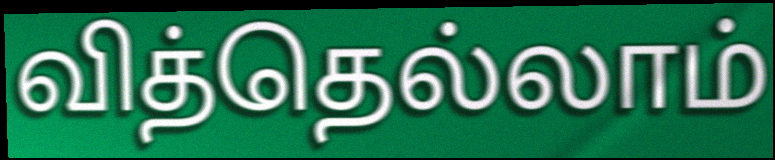
வித்தெல்லாம்